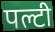
पल्टी